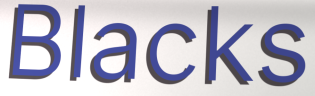
Blacks